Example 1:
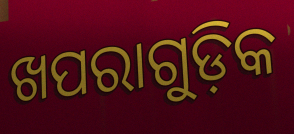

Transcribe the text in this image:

ଖପରାଗୁଡ଼ିକ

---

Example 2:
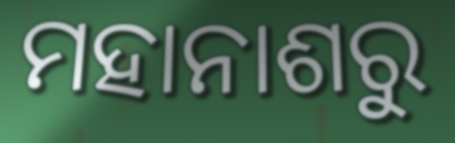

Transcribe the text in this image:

ମହାନାଶରୁ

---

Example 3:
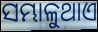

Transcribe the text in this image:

ସମ୍ଭାଳୁଥାଏ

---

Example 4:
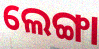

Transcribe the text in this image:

ଲେଙ୍ଗା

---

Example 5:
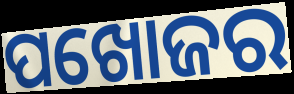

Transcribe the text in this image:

ପଖୋଜର